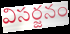
విసర్జనం